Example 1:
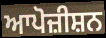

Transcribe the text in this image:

ਆਪੋਜ਼ੀਸ਼ਨ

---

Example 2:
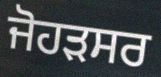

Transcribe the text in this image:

ਜੋਹੜਸਰ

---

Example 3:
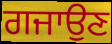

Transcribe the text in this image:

ਗਜਾਉਣ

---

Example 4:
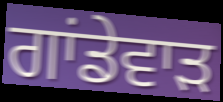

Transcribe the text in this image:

ਗਾਂਡੇਵਾੜ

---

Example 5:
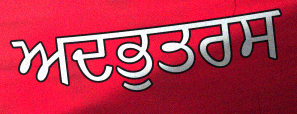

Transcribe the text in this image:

ਅਦਭੁਤਰਸ